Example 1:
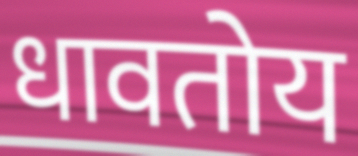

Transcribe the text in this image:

धावतोय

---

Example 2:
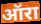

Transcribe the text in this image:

ऑरा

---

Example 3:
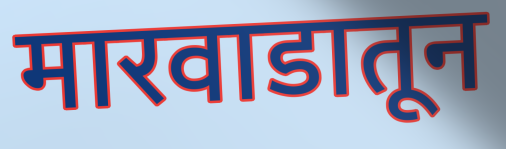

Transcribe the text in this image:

मारवाडातून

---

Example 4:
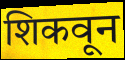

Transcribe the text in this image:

शिकवून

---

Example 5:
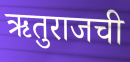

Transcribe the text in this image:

ऋतुराजची